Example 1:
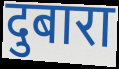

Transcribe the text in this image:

दुबारा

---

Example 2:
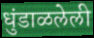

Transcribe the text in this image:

धुंडाळलेली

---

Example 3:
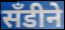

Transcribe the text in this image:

सॅंडीने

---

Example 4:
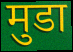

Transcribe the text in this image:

मुडा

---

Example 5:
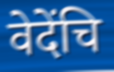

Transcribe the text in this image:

वेदेंचि